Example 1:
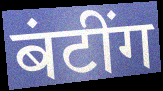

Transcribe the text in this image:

बंटींग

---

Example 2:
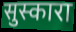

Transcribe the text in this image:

सुस्कारा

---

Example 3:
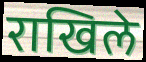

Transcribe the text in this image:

राखिले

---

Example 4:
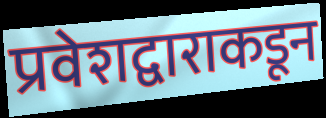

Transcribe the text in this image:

प्रवेशद्वाराकडून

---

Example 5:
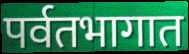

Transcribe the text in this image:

पर्वतभागात